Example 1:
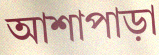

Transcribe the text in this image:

আশাপাড়া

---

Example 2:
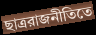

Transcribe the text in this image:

ছাত্ররাজনীতিতে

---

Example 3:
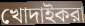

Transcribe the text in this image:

খোদাইকরা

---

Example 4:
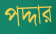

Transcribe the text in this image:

পদ্দার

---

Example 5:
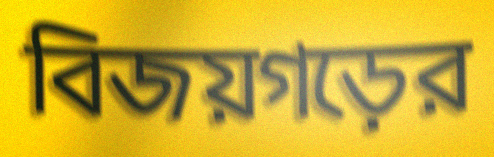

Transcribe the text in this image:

বিজয়গড়ের